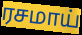
ரசமாய்